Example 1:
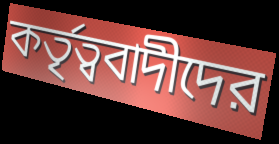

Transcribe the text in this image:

কর্তৃত্ববাদীদের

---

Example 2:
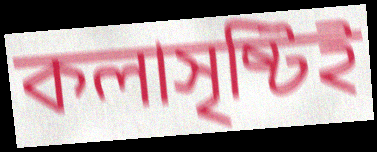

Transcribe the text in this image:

কলাসৃষ্টিই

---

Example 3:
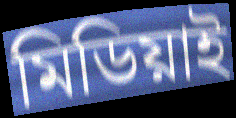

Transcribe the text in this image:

মিডিয়াই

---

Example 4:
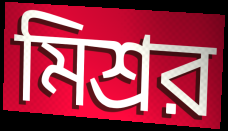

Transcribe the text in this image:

মিশ্রর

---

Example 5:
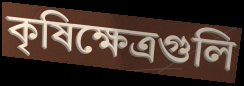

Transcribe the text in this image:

কৃষিক্ষেত্রগুলি